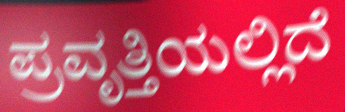
ಪ್ರವೃತ್ತಿಯಲ್ಲಿದೆ